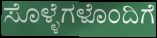
ಸೊಳ್ಳೆಗಳೊಂದಿಗೆ